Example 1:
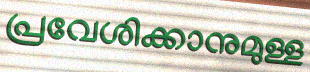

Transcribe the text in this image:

പ്രവേശിക്കാനുമുള്ള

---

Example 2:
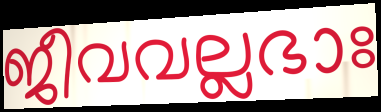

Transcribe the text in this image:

ജീവവല്ലഭാഃ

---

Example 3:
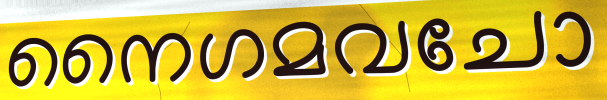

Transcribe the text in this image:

നൈഗമവചോ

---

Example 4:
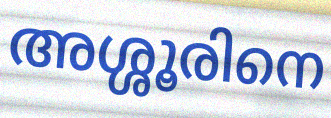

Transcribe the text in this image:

അശ്ശൂരിനെ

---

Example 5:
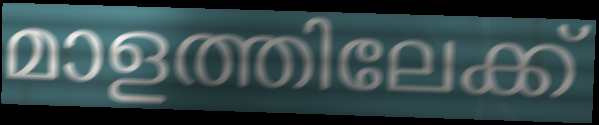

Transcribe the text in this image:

മാളത്തിലേക്ക്